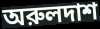
অরুলদাশ